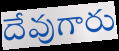
దేవుగారు